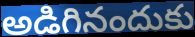
అడిగినందుకు